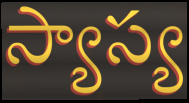
స్యాస్య